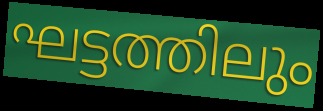
ഘട്ടത്തിലും